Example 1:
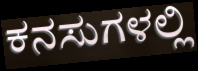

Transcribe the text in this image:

ಕನಸುಗಳಲ್ಲಿ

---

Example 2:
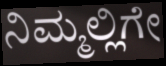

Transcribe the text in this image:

ನಿಮ್ಮಲ್ಲಿಗೇ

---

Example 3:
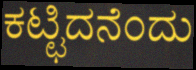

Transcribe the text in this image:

ಕಟ್ಟಿದನೆಂದು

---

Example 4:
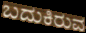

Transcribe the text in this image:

ಬದುಕಿರುವ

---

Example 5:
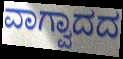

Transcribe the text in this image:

ವಾಗ್ವಾದದ